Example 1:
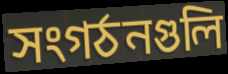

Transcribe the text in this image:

সংগঠনগুলি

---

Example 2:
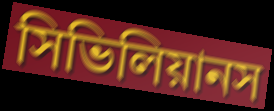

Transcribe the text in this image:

সিভিলিয়ানস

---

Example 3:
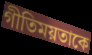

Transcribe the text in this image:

গীতিময়তাকে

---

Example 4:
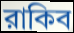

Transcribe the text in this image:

রাকিব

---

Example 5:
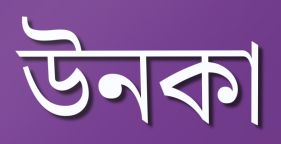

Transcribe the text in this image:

উনকা